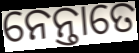
ନେନ୍ତାତେ